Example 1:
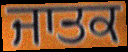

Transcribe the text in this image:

ਜਾਤਕ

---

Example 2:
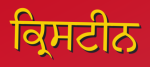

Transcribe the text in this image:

ਕ੍ਰਿਸਟੀਨ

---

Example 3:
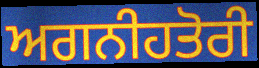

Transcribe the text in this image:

ਅਗਨੀਹਤੋਰੀ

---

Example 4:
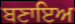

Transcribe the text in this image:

ਬਣਾਇਅ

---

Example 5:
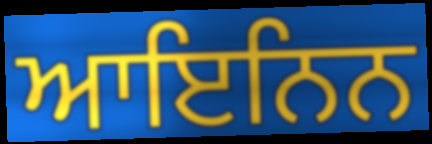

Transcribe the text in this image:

ਆਇਨਿਨ